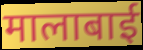
मालाबाई